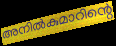
അനിൽകുമാറിന്റെ